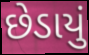
છેડાયું